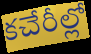
కచేరీల్లో